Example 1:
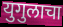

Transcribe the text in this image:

युगुलाचा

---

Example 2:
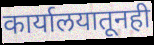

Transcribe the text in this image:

कार्यालयातूनही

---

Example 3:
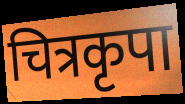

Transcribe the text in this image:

चित्रकृपा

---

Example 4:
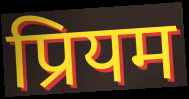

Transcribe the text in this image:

प्रियम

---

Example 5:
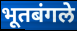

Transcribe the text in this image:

भूतबंगले